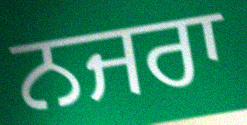
ਨਜਰਾ